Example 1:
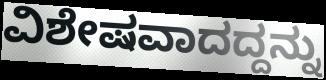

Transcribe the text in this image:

ವಿಶೇಷವಾದದ್ದನ್ನು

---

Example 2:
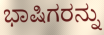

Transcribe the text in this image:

ಭಾಷಿಗರನ್ನು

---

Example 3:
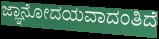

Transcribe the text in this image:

ಜ್ಞಾನೋದಯವಾದಂತಿದೆ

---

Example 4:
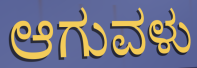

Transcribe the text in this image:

ಆಗುವಳು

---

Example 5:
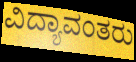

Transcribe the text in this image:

ವಿದ್ಯಾವಂತರು